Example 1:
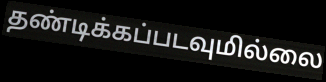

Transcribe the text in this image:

தண்டிக்கப்படவுமில்லை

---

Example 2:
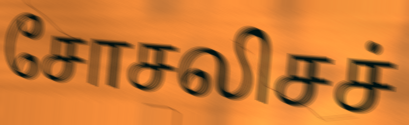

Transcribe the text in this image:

சோசலிசச்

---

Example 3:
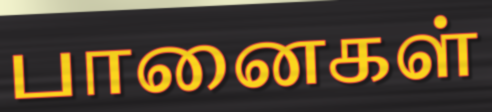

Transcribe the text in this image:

பானைகள்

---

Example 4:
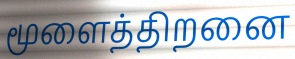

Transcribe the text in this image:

மூளைத்திறனை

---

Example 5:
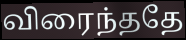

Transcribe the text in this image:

விரைந்ததே